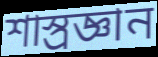
শাস্ত্রজ্ঞান